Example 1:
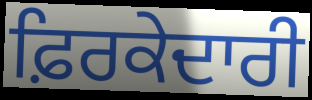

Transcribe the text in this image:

ਫ਼ਿਰਕੇਦਾਰੀ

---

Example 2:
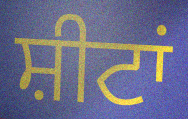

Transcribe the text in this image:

ਸ਼ੀਟਾਂ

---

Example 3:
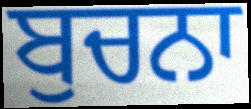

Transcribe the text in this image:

ਬੁਚਨਾ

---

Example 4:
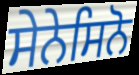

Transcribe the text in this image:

ਸੇਨੇਸਿਨੋ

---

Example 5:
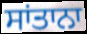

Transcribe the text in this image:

ਸਾਂਤਾਨਾ